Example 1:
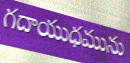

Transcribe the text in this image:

గదాయుధమును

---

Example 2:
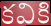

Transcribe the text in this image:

కవికి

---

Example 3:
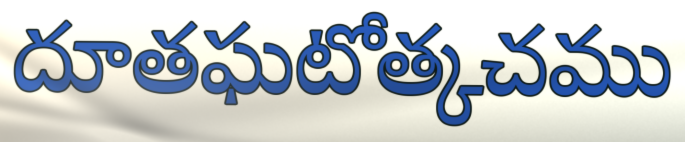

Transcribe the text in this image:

దూతఘటోత్కచము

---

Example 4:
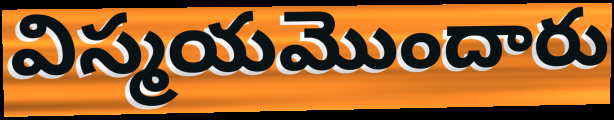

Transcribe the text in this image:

విస్మయమొందారు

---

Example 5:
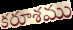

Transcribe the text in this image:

కరూశము